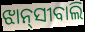
ଝାନ୍‌ସୀବାଲି